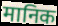
मानिक